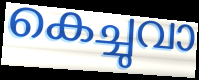
കെച്ചുവാ